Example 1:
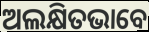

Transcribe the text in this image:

ଅଲକ୍ଷିତଭାବେ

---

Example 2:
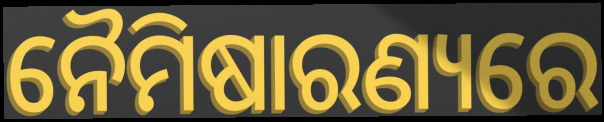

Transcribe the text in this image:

ନୈମିଷାରଣ୍ୟରେ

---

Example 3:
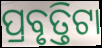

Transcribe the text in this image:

ପ୍ରବୃତ୍ତିଟା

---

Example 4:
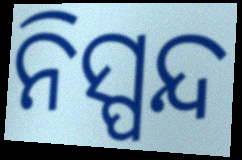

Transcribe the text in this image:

ନିସ୍ପନ୍ଦ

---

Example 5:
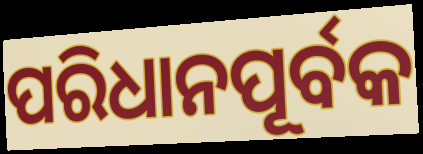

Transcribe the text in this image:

ପରିଧାନପୂର୍ବକ